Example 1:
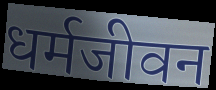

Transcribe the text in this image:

धर्मजीवन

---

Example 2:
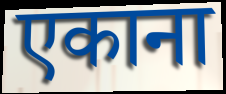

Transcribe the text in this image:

एकाना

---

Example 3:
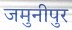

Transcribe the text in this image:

जमुनीपुर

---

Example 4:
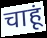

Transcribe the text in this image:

चाहूं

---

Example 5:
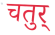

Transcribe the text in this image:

चतुर्